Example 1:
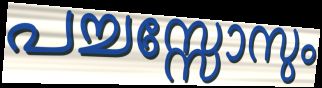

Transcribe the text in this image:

പച്ചസ്സോസും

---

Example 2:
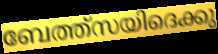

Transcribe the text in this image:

ബേത്ത്സയിദെക്കു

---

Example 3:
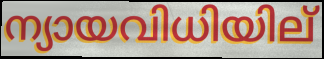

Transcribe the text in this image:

ന്യായവിധിയില്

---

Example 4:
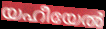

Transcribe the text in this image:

യഹീയേൽ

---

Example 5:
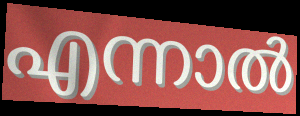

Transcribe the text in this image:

എന്നാൽ